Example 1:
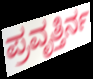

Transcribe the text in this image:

ಪ್ರವೃತ್ತಿರ್ನ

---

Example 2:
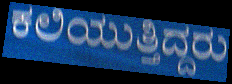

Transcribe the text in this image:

ಕಲಿಯುತ್ತಿದ್ದರು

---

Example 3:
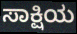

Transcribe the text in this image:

ಸಾಕ್ಷಿಯ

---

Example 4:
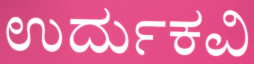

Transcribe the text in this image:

ಉರ್ದುಕವಿ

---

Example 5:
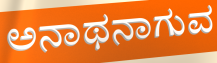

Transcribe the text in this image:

ಅನಾಥನಾಗುವ